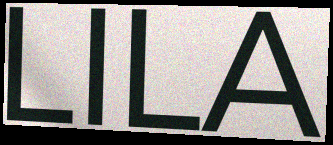
LILA